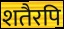
शतैरपि